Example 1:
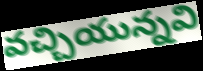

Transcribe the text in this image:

వచ్చియున్నవి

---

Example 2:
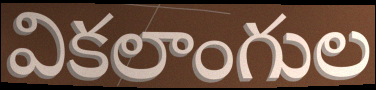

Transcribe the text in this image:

వికలాంగుల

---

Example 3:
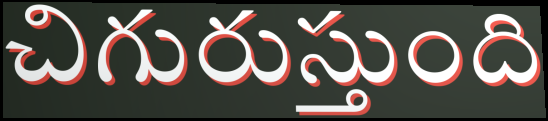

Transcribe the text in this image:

చిగురుస్తుంది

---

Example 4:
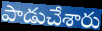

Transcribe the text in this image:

పాడుచేశారు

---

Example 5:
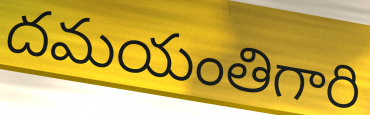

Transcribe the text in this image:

దమయంతిగారి